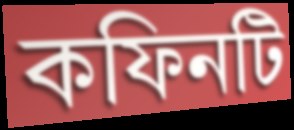
কফিনটি